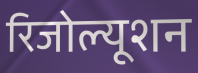
रिजोल्यूशन